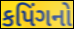
કપિંગનો